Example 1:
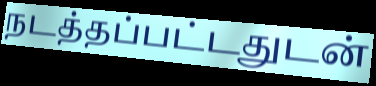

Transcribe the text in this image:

நடத்தப்பட்டதுடன்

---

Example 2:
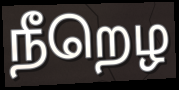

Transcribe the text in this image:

நீறெழ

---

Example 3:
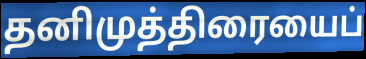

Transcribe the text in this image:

தனிமுத்திரையைப்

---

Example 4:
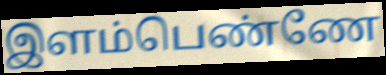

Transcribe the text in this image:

இளம்பெண்ணே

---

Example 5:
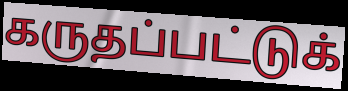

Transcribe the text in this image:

கருதப்பட்டுக்